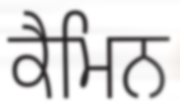
ਕੈਮਿਨ